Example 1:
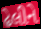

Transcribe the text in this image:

ઢેલીને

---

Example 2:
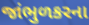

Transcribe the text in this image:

જાંભુળકરના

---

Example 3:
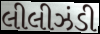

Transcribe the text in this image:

લીલીઝંડી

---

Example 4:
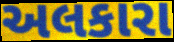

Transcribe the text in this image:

અલકારા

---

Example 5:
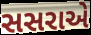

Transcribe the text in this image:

સસરાએ